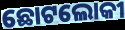
ଛୋଟଲୋକୀ